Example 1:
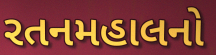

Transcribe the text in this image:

રતનમહાલનો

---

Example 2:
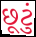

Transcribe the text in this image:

છૂટું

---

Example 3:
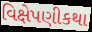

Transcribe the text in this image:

વિક્ષેપણીકથા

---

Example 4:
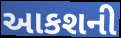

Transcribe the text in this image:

આકશની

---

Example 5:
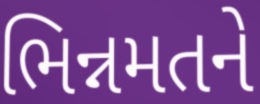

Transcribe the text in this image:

ભિન્નમતને